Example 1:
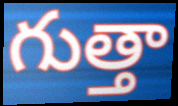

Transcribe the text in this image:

గుత్తా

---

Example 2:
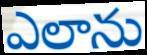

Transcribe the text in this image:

ఎలాను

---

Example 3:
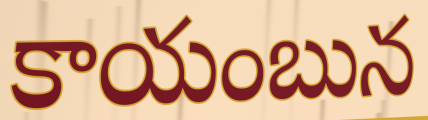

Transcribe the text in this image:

కాయంబున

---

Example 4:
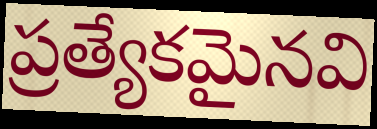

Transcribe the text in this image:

ప్రత్యేకమైనవి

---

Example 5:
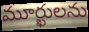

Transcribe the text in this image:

మూర్ఖులను